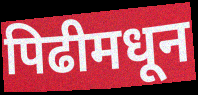
पिढीमधून